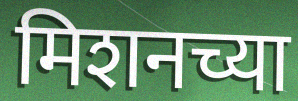
मिशनच्या